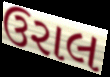
ઉરાલ